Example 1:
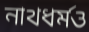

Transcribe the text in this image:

নাথধর্মও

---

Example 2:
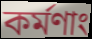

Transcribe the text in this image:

কর্মণাং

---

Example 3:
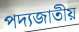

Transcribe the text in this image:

পদ্যজাতীয়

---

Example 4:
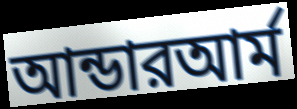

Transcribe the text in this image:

আন্ডারআর্ম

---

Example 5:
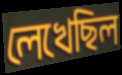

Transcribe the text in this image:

লেখেছিল